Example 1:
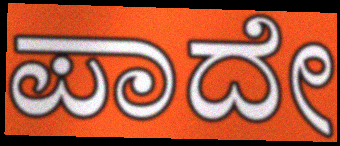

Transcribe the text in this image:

ಪಾದೇ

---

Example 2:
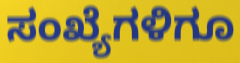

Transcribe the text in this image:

ಸಂಖ್ಯೆಗಳಿಗೂ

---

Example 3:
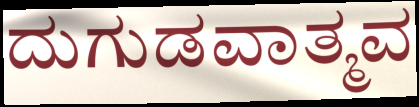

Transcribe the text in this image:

ದುಗುಡವಾತ್ಮವ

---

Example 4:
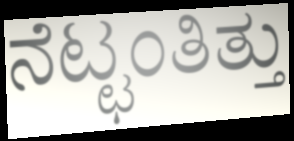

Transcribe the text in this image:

ನೆಟ್ಟಂತಿತ್ತು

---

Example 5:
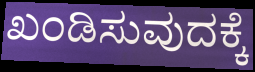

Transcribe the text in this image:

ಖಂಡಿಸುವುದಕ್ಕೆ